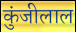
कुंजीलाल